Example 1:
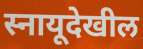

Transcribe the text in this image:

स्नायूदेखील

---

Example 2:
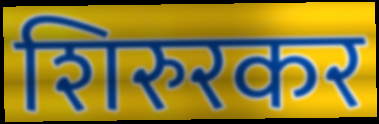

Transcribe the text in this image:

शिरुरकर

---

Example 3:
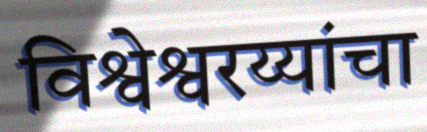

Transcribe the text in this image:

विश्वेश्वरय्यांचा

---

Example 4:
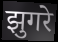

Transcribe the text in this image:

झुगरे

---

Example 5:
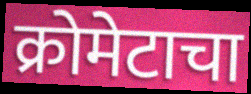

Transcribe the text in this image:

क्रोमेटाचा